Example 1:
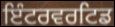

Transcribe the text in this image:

ਇੰਟਰਵਰਟਿਡ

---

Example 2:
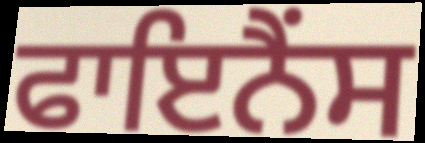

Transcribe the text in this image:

ਫਾਇਨੈਂਸ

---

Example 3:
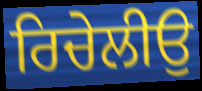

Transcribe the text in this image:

ਰਿਚੇਲੀਉ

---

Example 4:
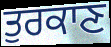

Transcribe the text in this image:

ਤੁਰਕਾਣ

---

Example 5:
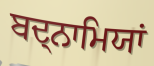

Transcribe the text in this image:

ਬਦ੍ਨਾਮਿਯਾਂ